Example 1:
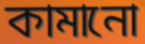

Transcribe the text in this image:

কামানো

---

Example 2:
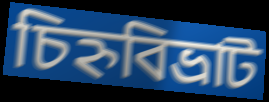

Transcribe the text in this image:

চিহ্নবিভ্রাট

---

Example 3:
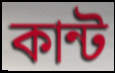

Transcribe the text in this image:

কান্ট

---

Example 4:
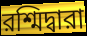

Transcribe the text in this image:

রশ্মিদ্বারা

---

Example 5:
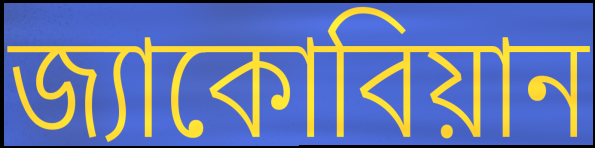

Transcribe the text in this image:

জ্যাকোবিয়ান